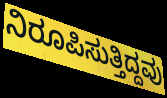
ನಿರೂಪಿಸುತ್ತಿದ್ದವು